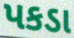
પકડા